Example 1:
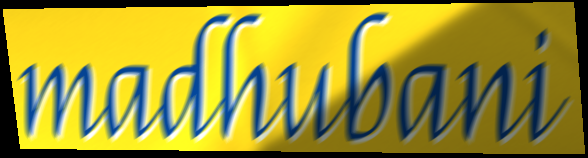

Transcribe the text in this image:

madhubani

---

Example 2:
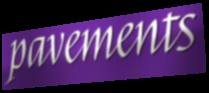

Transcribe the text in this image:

pavements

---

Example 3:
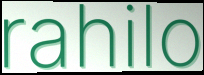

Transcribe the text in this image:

rahilo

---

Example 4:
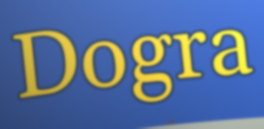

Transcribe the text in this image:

Dogra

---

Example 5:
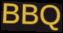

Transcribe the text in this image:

BBQ